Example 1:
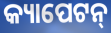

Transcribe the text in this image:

କ୍ୟାପେଟନ୍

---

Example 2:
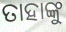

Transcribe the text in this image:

ତାହାଙ୍କୁ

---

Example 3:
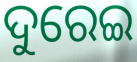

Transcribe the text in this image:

ଦୁରେଇ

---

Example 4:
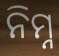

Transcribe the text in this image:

ନିମ୍ନ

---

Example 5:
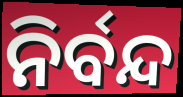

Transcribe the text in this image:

ନିର୍ବନ୍ଦ